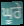
ਘੂਰੇ